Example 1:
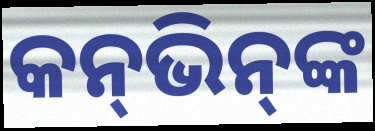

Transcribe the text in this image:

କନ୍‌ଭିନ୍‌ଙ୍କ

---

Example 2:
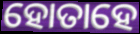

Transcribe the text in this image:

ହୋତାହେ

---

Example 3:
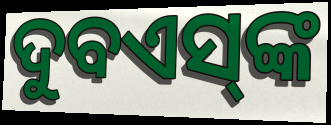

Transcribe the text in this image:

ଦୁବଏସ୍‌ଙ୍କ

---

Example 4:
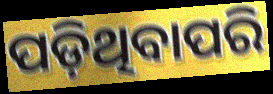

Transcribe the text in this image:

ପଡ଼ିଥିବାପରି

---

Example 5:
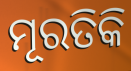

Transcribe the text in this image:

ମୂରତିକି